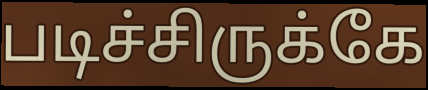
படிச்சிருக்கே